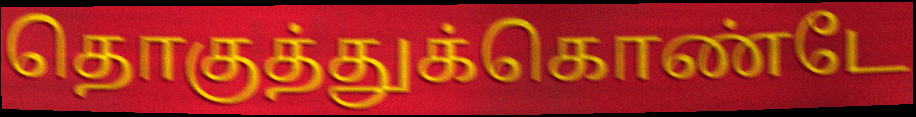
தொகுத்துக்கொண்டே